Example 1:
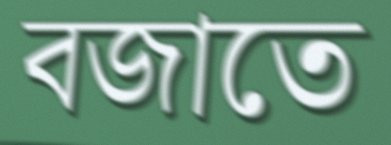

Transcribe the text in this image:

বজাতে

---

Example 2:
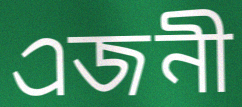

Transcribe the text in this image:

এজনী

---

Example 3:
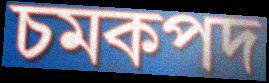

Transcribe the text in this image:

চমকপদ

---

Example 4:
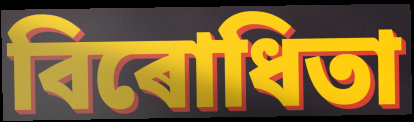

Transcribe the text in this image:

বিৰোধিতা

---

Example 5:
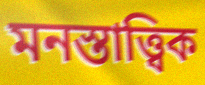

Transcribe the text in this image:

মনস্তাত্ত্বিক